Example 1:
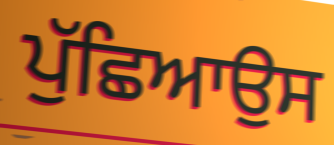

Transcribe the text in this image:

ਪੁੱਛਿਆਉਸ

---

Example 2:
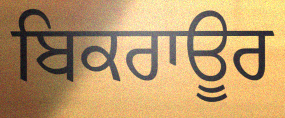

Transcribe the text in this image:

ਬਿਕਰਾਊਰ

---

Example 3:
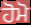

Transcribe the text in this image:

ਹੋਮੋ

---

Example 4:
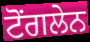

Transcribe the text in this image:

ਟੋਂਗਲੇਨ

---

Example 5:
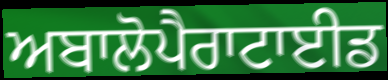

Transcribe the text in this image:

ਅਬਾਲੋਪੈਰਾਟਾਈਡ